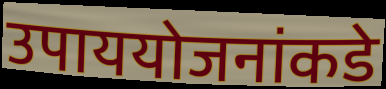
उपाययोजनांकडे